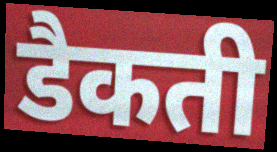
डैकती